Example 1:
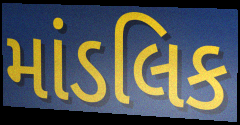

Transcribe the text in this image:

માંડલિક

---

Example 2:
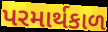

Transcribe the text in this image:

પરમાર્થકાળ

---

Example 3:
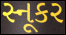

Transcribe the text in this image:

સ્નૂકર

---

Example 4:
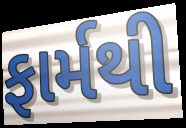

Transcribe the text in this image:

ફાર્મથી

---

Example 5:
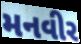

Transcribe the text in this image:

મનવીર